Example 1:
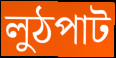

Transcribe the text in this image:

লুঠপাট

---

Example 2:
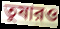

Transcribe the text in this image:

তুষারও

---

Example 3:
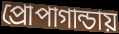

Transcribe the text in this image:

প্রোপাগান্ডায়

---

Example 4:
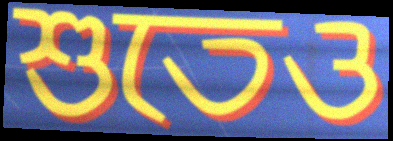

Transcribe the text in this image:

শুতেও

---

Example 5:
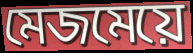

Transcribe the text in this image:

মেজমেয়ে